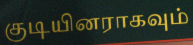
குடியினராகவும்